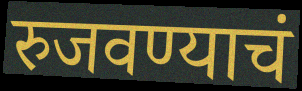
रुजवण्याचं